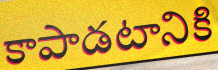
కాపాడటానికి